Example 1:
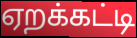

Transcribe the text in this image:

ஏறக்கட்டி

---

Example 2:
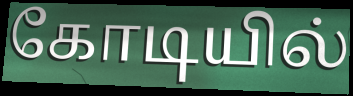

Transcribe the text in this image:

கோடியில்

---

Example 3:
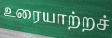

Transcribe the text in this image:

உரையாற்றச்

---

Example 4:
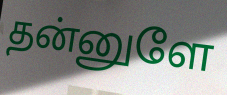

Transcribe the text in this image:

தன்னுளே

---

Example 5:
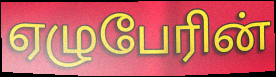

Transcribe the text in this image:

ஏழுபேரின்